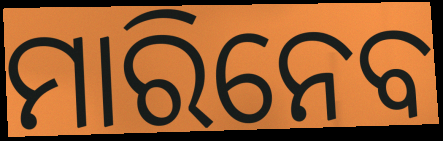
ମାରିନେବ